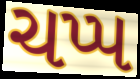
ચપ્પ